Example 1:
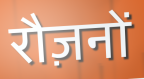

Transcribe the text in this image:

रौज़नों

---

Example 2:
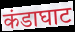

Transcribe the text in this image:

कंडाघाट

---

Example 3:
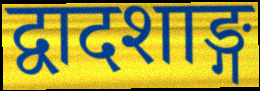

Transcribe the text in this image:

द्वादशाङ्ग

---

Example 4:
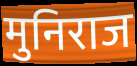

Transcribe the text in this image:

मुनिराज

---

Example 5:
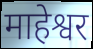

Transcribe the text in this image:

माहेश्वर